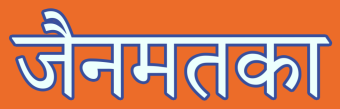
जैनमतका